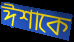
ঈশাকে